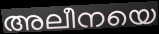
അലീനയെ